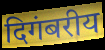
दिगंबरीय